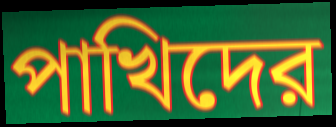
পাখিদের